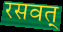
रसवत्